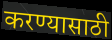
करण्यासाठी